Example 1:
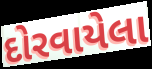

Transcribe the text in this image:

દોરવાયેલા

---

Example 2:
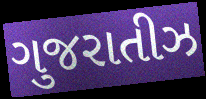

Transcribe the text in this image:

ગુજરાતીઝ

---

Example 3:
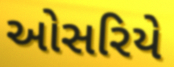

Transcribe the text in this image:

ઓસરિયે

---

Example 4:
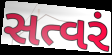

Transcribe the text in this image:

સત્વરં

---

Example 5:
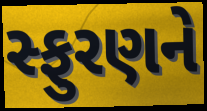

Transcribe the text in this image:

સ્ફુરણને